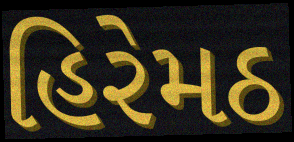
હિરેમઠ